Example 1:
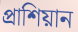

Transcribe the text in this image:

প্রাশিয়ান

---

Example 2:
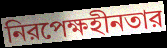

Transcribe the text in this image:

নিরপেক্ষহীনতার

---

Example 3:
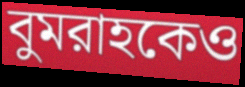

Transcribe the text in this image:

বুমরাহকেও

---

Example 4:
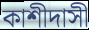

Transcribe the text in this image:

কাশীদাসী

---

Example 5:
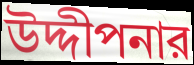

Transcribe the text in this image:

উদ্দীপনার